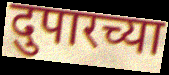
दुपारच्या